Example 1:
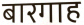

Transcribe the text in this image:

बारगाह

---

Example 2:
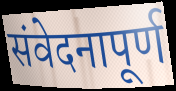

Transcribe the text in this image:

संवेदनापूर्ण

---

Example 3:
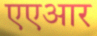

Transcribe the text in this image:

एएआर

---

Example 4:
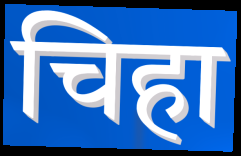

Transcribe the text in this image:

चिहा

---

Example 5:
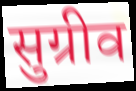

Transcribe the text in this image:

सुग्रीव